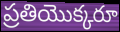
ప్రతియొక్కరూ